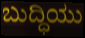
ಬುದ್ಧಿಯು